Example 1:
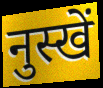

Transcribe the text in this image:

नुस्खें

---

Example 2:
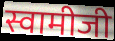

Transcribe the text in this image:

स्‍वामीजी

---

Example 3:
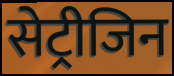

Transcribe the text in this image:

सेट्रीजिन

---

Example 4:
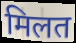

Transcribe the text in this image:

मिलत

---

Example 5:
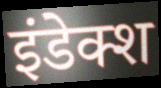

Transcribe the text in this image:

इंडेक्श